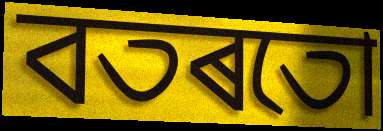
বতৰতো